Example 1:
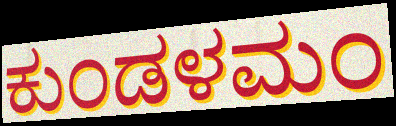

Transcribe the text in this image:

ಕುಂಡಳಮಂ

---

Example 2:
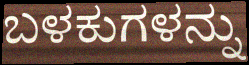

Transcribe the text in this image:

ಬಳಕುಗಳನ್ನು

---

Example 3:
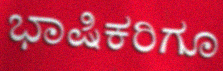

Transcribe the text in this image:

ಭಾಷಿಕರಿಗೂ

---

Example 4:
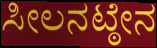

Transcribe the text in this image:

ಸೀಲನಟ್ಠೇನ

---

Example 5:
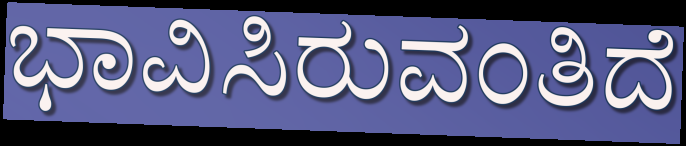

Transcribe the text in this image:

ಭಾವಿಸಿರುವಂತಿದೆ